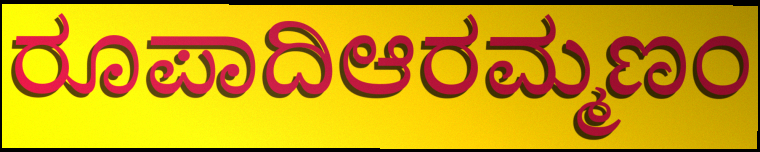
ರೂಪಾದಿಆರಮ್ಮಣಂ